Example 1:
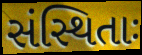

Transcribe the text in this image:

સંસ્થિતાઃ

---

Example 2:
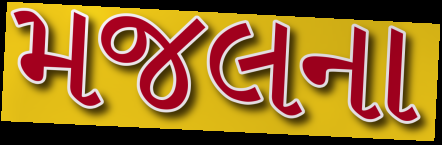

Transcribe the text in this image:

મજલના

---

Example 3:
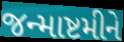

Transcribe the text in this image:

જન્માષ્ટમીને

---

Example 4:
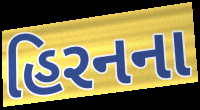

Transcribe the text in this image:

હિરનના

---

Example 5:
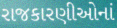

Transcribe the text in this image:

રાજકારણીઓનાં